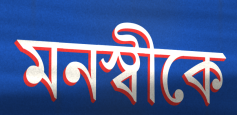
মনস্বীকে